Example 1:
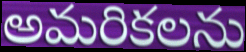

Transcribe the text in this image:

అమరికలను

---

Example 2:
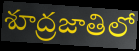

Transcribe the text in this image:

శూద్రజాతిలో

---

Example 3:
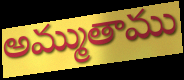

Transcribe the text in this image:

అమ్ముతాము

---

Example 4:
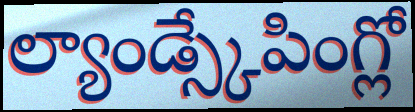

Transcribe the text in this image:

ల్యాండ్స్కేపింగ్లో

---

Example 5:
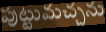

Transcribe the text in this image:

పుట్టుమచ్చను